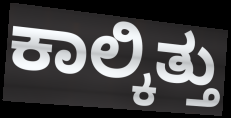
ಕಾಲ್ಕಿತ್ತು